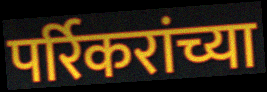
पर्रिकरांच्या